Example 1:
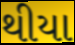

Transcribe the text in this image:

થીયા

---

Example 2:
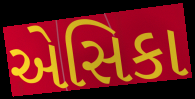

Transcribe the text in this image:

એસિકા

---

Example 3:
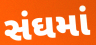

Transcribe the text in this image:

સંઘમાં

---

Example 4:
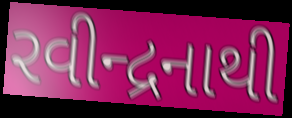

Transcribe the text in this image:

રવીન્દ્રનાથી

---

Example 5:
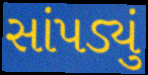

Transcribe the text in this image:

સાંપડ્યું